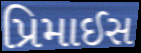
પ્રિમાઈસ